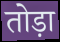
तोड़ा